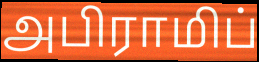
அபிராமிப்